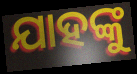
ଯାହଙ୍କୁ